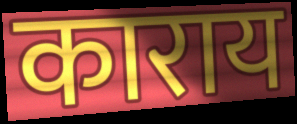
काराय